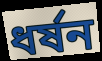
ধর্ষন